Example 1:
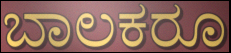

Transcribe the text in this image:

ಬಾಲಕರೂ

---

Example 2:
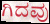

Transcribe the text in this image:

ಗಿದವು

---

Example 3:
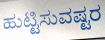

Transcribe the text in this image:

ಹುಟ್ಟಿಸುವಷ್ಟರ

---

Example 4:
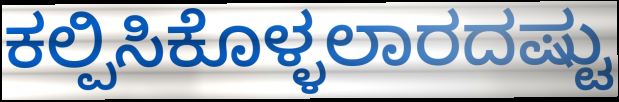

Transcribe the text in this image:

ಕಲ್ಪಿಸಿಕೊಳ್ಳಲಾರದಷ್ಟು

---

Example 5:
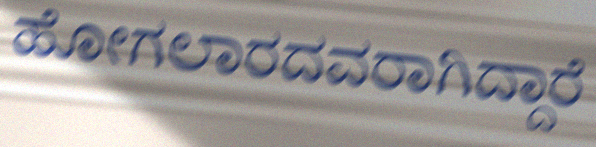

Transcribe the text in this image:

ಹೋಗಲಾರದವರಾಗಿದ್ದಾರೆ